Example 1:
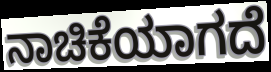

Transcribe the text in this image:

ನಾಚಿಕೆಯಾಗದೆ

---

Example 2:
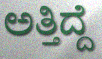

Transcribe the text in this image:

ಅತ್ತಿದ್ದೆ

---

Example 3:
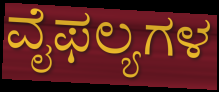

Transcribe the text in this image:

ವೈಫಲ್ಯಗಳ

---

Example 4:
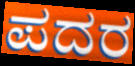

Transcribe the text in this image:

ಪದರ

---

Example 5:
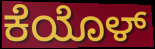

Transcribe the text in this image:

ಕೆಯೊಳ್